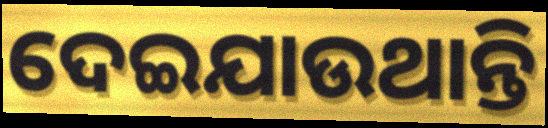
ଦେଇଯାଉଥାନ୍ତି